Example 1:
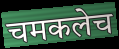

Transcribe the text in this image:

चमकलेच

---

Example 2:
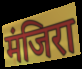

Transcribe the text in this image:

मंजिरा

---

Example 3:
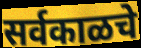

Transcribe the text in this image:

सर्वकाळचे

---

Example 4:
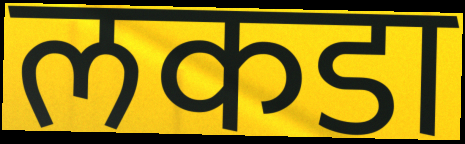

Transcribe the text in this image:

लकडा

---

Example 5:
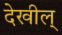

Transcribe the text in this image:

देखील्